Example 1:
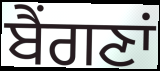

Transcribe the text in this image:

ਬੈਂਗਣਾਂ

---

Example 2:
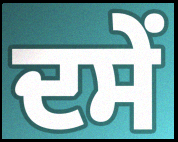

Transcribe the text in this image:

ਦਸੇਂ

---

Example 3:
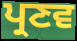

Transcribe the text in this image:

ਪ੍ਰਣਵ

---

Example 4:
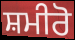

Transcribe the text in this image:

ਸ਼ਮੀਰੋ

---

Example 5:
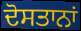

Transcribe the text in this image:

ਦੋਸਤਾਨਾਂ